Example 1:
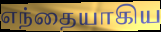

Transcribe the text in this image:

எந்தையாகிய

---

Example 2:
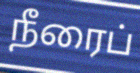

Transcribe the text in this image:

நீரைப்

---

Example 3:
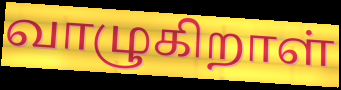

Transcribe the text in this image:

வாழுகிறாள்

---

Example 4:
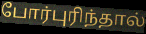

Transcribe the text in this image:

போர்புரிந்தால்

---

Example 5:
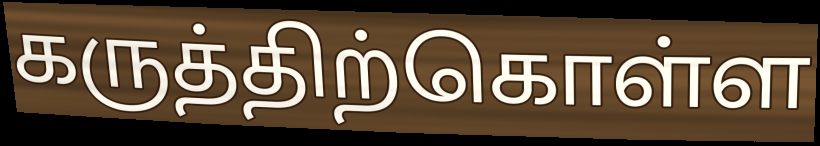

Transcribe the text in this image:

கருத்திற்கொள்ள